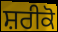
ਸ਼ਰੀਕੋ